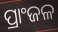
ପ୍ରାଂଜଳ